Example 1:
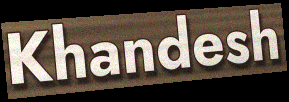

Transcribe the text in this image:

Khandesh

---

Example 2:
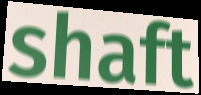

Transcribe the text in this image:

shaft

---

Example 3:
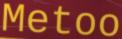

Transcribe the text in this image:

Metoo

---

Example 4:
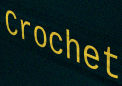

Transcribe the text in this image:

Crochet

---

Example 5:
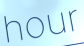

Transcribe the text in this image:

hour